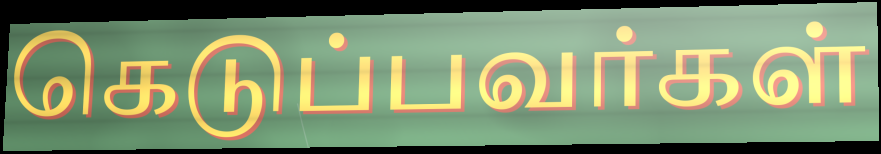
கெடுப்பவர்கள்